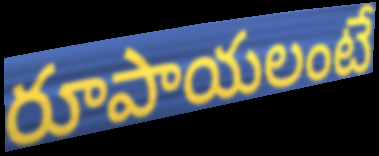
రూపాయలంటే